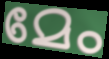
മേം